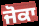
ਜੋਕਾ